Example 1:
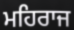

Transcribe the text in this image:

ਮਹਿਰਾਜ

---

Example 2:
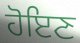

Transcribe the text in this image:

ਹੋਇਣ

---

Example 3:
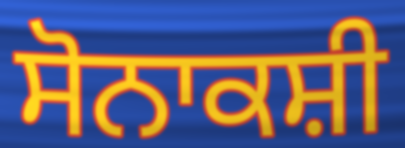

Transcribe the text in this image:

ਸੋਨਾਕਸ਼ੀ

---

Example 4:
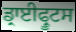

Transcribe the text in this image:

ਡ੍ਰਾਈਫ੍ਰੂਟਸ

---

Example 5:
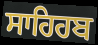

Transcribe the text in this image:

ਸਾਹਿਹਬ